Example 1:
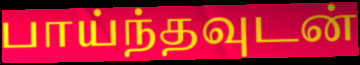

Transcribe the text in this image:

பாய்ந்தவுடன்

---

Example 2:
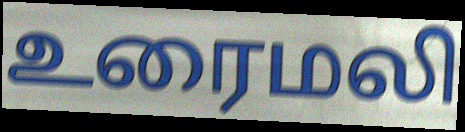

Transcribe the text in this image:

உரைமலி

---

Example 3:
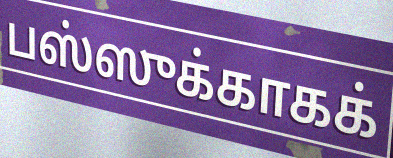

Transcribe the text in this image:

பஸ்ஸுக்காகக்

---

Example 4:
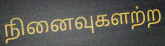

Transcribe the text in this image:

நினைவுகளற்ற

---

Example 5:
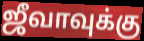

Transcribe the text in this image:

ஜீவாவுக்கு